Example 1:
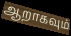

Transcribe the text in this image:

ஆறாகவும்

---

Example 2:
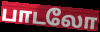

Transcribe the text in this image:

பாடலோ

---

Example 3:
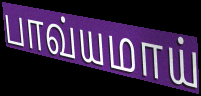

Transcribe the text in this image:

பாவ்யமாய்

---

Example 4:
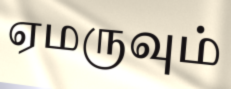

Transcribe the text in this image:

ஏமருவும்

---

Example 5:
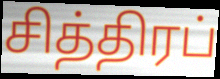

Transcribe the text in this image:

சித்திரப்